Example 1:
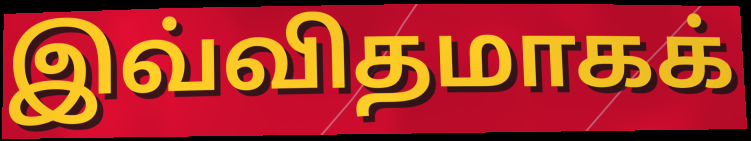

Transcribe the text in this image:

இவ்விதமாகக்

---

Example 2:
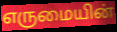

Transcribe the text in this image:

எருமையின்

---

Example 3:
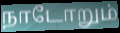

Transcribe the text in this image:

நாடோறும்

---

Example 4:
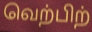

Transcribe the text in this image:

வெற்பிற்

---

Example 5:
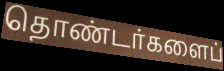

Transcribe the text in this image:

தொண்டர்களைப்